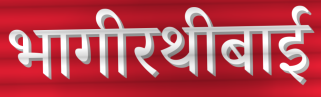
भागीरथीबाई